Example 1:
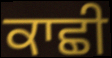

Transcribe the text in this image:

ਕਾਛੀ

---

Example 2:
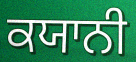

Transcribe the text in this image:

ਕਯਾਨੀ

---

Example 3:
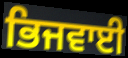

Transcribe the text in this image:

ਭਿਜਵਾਈ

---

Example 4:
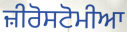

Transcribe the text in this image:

ਜ਼ੀਰੋਸਟੋਮੀਆ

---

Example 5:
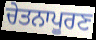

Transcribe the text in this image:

ਚੇਤਨਾਪੂਰਣ